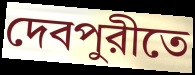
দেবপুরীতে